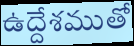
ఉద్దేశముతో